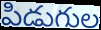
పిడుగుల